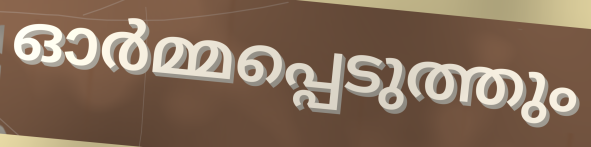
ഓർമ്മപ്പെടുത്തും